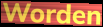
Worden